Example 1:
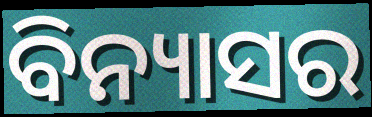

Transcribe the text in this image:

ବିନ୍ୟାସର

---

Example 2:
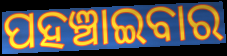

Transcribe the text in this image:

ପହଞ୍ଚାଇବାର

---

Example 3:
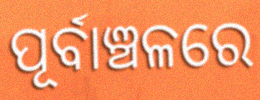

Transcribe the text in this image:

ପୂର୍ବାଞ୍ଚଳରେ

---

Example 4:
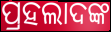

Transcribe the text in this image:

ପ୍ରହଲାଦଙ୍କ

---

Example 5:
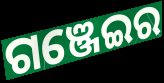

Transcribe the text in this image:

ଗଞ୍ଜେଇର